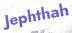
Jephthah